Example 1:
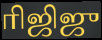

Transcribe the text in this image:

ரிஜிஜு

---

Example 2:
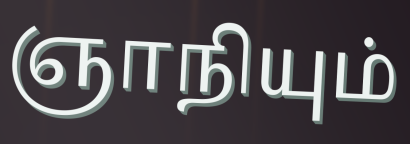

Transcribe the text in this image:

ஞாநியும்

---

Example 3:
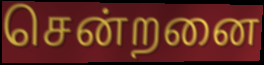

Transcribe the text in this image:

சென்றனை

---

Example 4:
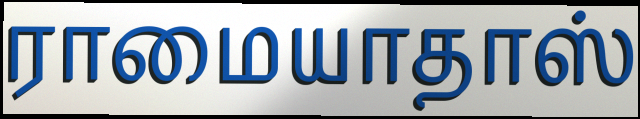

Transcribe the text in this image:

ராமையாதாஸ்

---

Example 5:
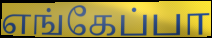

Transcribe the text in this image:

எங்கேப்பா